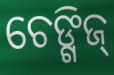
ଚେଙ୍ଗିଜ୍